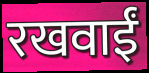
रखवाईं